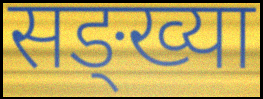
सङ्ख्या